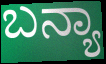
ಬನ್ಯಾ